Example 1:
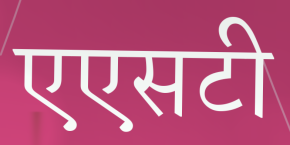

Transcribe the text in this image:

एएसटी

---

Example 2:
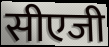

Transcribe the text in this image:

सीएजी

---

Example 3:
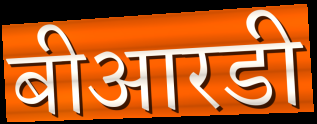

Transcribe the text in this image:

बीआरडी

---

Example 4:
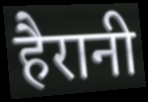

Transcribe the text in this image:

हैरानी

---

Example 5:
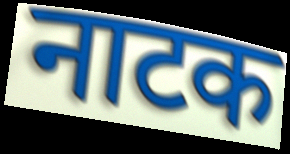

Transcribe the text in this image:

नाटक